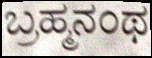
ಬ್ರಹ್ಮನಂಥ